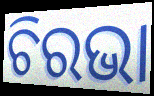
ଚିରଭା